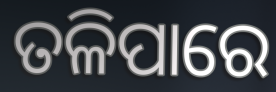
ତଳିପାରେ